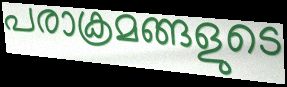
പരാക്രമങ്ങളുടെ